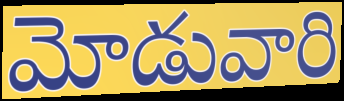
మోడువారి